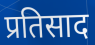
प्रतिसाद